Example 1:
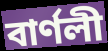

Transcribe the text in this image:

বাৰ্ণলী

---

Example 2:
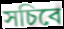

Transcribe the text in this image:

সচিবে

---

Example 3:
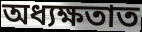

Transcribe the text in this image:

অধ্যক্ষতাত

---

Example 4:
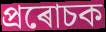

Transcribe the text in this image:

প্ৰৰোচক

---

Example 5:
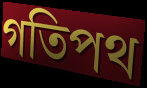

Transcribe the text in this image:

গতিপথ